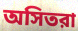
অসিতরা